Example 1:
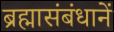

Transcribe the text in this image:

ब्रह्मासंबंधानें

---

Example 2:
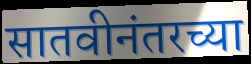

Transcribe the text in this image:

सातवीनंतरच्या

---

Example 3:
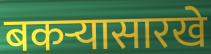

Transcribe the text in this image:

बकऱ्यासारखे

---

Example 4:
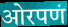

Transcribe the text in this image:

ओरपणं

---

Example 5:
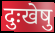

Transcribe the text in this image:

दुःखेषु